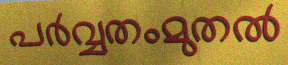
പർവ്വതംമുതൽ